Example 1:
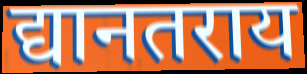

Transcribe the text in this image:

द्यानतराय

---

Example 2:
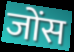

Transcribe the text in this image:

जोंस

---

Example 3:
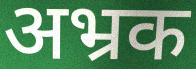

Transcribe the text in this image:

अभ्रक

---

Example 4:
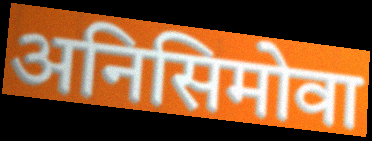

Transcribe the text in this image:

अनिसिमोवा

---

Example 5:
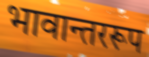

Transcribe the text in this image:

भावान्तररूप